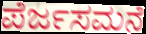
ಪೆರ್ಜಸಮನೆ